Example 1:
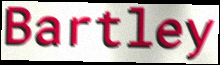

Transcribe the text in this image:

Bartley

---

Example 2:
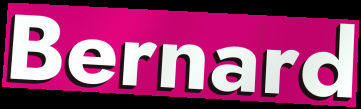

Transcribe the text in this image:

Bernard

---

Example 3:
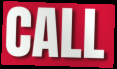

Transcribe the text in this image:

CALL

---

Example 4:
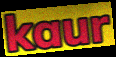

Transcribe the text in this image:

kaur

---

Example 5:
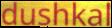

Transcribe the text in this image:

dushkal